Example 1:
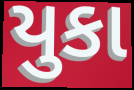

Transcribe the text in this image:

યુકા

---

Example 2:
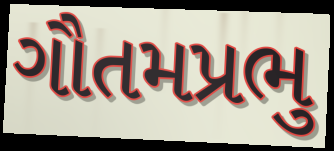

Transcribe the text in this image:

ગૌતમપ્રભુ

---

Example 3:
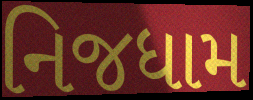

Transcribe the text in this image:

નિજધામ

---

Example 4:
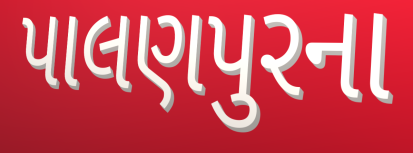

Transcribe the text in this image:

પાલણપુરના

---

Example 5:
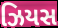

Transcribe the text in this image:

ઝિયસ